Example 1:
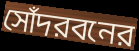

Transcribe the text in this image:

সোঁদরবনের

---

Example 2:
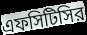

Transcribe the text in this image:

এফসিটিসির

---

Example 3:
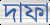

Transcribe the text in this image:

দাফা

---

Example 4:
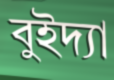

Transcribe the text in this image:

বুইদ্যা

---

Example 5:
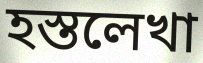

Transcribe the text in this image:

হস্তলেখা